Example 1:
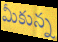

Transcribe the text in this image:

మీకున్న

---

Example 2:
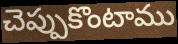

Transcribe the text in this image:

చెప్పుకొంటాము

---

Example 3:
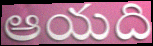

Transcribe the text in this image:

ఆయది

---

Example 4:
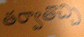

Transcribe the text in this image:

తర్వాతొచ్చి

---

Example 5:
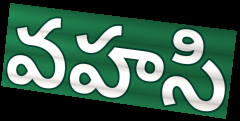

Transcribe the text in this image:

వహసి